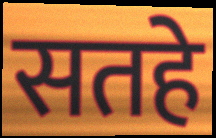
सतहे